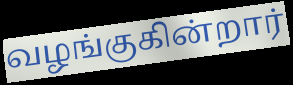
வழங்குகின்றார்